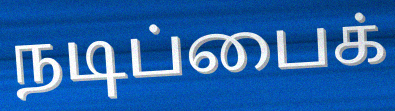
நடிப்பைக்